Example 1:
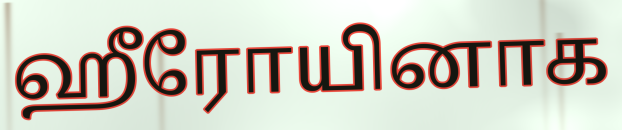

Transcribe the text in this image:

ஹீரோயினாக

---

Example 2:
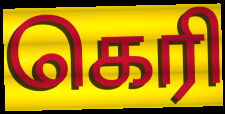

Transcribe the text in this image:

கெரி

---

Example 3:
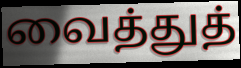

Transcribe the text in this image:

வைத்துத்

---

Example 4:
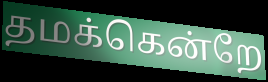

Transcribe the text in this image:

தமக்கென்றே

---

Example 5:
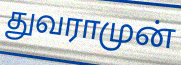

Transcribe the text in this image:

துவராமுன்